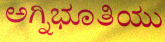
ಅಗ್ನಿಭೂತಿಯು